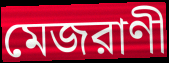
মেজরাণী